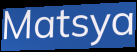
Matsya